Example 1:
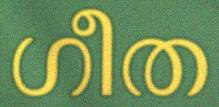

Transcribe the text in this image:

ഗീത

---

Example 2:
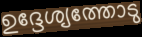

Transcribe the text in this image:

ഉദ്ദേശ്യത്തോടു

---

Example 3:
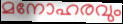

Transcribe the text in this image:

മനോഹരവും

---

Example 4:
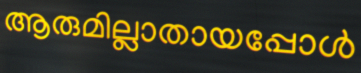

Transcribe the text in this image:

ആരുമില്ലാതായപ്പോൾ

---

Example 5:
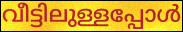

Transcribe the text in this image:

വീട്ടിലുള്ളപ്പോൾ